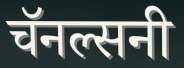
चॅनल्सनी